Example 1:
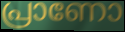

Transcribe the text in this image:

പ്രാണോ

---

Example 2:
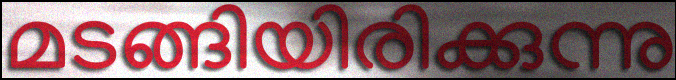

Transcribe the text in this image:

മടങ്ങിയിരിക്കുന്നു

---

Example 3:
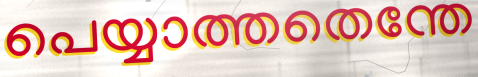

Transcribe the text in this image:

പെയ്യാത്തതെന്തേ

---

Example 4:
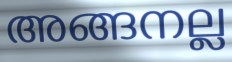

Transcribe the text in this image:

അങ്ങനല്ല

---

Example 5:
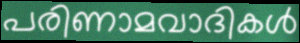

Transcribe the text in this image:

പരിണാമവാദികൾ